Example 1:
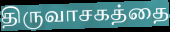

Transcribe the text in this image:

திருவாசகத்தை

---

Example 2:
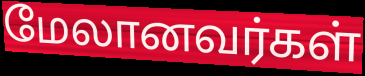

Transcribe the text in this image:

மேலானவர்கள்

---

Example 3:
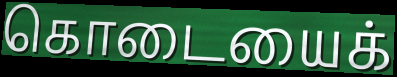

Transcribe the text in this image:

கொடையைக்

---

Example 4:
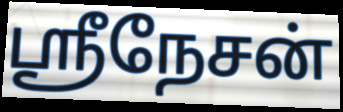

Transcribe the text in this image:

ஸ்ரீநேசன்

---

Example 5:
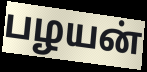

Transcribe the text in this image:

பழயன்